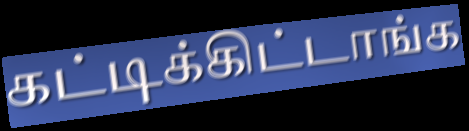
கட்டிக்கிட்டாங்க